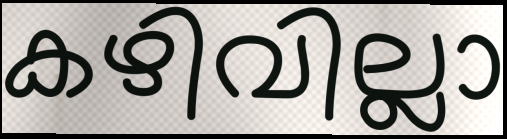
കഴിവില്ലാ